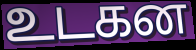
உடகன